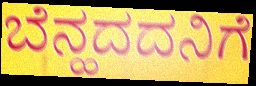
ಬೆನ್ಹದದನಿಗೆ